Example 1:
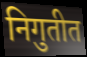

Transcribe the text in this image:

निगुतीत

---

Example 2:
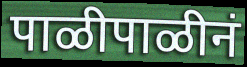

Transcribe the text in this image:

पाळीपाळीनं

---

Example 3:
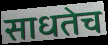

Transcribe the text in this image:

साधतेच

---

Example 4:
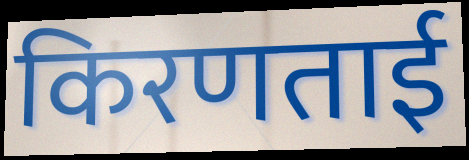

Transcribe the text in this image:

किरणताई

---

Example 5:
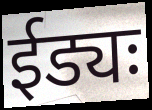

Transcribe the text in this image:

ईड्यः